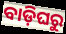
ବାଡ଼ିଘରୁ